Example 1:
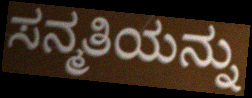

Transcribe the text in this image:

ಸನ್ಮತಿಯನ್ನು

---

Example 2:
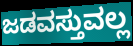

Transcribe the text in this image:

ಜಡವಸ್ತುವಲ್ಲ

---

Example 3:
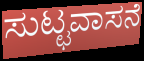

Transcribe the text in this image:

ಸುಟ್ಟವಾಸನೆ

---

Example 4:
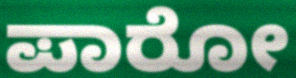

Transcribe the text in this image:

ಪಾರೋ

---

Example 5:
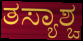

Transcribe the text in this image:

ತಸ್ಯಾಶ್ಚ